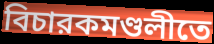
বিচারকমণ্ডলীতে